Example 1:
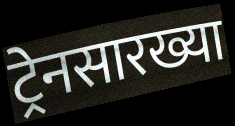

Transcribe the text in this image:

ट्रेनसारख्या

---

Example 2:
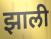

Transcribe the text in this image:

झाली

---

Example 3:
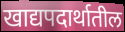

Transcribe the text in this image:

खाद्यपदार्थातील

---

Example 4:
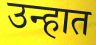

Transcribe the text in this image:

उन्हात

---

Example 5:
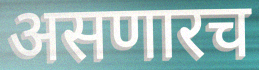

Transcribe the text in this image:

असणारच